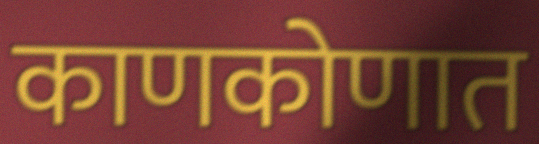
काणकोणात